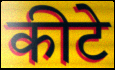
कीटे